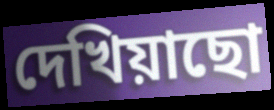
দেখিয়াছো